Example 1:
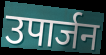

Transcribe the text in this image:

उपार्जन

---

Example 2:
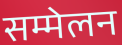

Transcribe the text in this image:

सम्मेलन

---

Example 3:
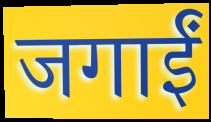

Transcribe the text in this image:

जगाईं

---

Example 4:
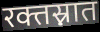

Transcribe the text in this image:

रक्तस्नात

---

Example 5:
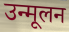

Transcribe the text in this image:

उन्मूलन